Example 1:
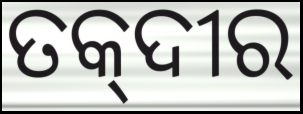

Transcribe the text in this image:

ତକ୍‌ଦୀର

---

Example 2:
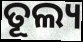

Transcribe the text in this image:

ତୂଲ୍ୟ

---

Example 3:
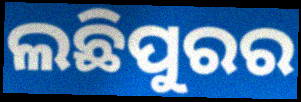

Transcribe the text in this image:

ଲଛିପୁରର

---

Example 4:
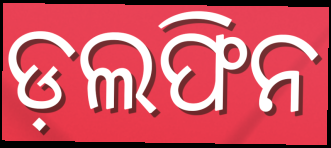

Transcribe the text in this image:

ଡ଼ଲଫିନ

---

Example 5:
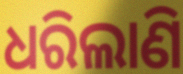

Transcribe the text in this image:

ଧରିଲାଣି